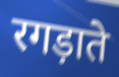
रगड़ाते